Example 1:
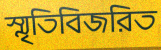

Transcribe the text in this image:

স্মৃতিবিজরিত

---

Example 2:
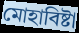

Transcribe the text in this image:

মোহাবিষ্টা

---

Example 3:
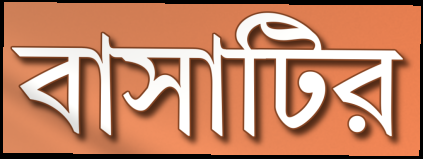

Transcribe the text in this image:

বাসাটির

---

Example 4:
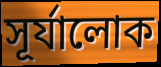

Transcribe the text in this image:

সূর্যালোক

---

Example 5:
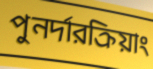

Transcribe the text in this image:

পুনর্দারক্রিয়াং